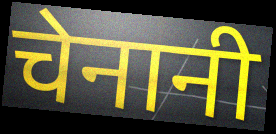
चेनानी